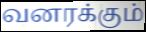
வனரக்கும்